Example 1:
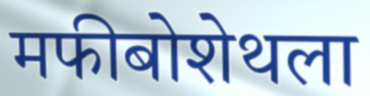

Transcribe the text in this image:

मफीबोशेथला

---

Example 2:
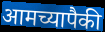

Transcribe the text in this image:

आमच्यापैकी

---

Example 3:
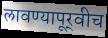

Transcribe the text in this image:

लावण्यापूर्वीच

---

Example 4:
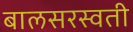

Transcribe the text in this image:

बालसरस्वती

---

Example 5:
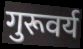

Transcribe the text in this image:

गुरूवर्य